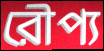
রৌপ্য